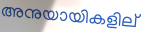
അനുയായികളില്